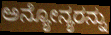
ಅನ್ಯೋನ್ಯರನ್ನು